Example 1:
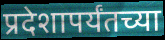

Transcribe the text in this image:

प्रदेशापर्यंतच्या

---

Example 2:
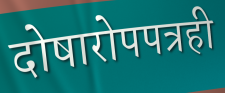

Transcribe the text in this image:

दोषारोपपत्रही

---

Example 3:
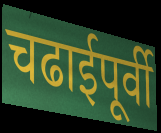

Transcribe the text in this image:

चढाईपूर्वी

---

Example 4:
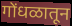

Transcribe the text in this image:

गोंधळातून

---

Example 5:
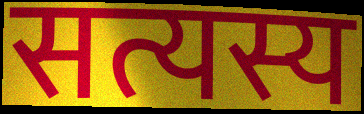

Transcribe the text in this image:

सत्यस्य